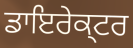
ਡਾਇਰੇਕ੍ਟਰ